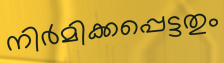
നിർമിക്കപ്പെട്ടതും